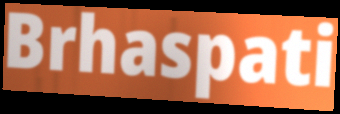
Brhaspati